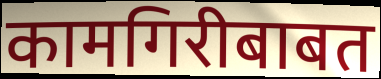
कामगिरीबाबत